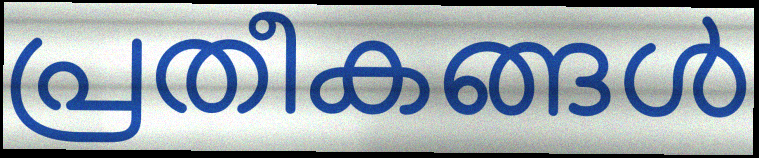
പ്രതീകങ്ങൾ